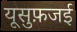
यूसुफ़जई